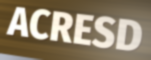
ACRESD